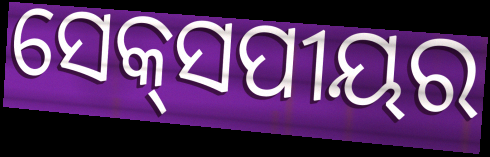
ସେକ୍‌ସପୀୟର